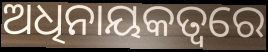
ଅଧିନାୟକତ୍ବରେ